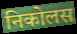
निकोलस